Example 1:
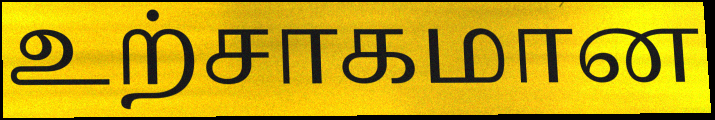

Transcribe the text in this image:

உற்சாகமான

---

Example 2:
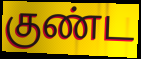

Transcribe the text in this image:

குண்ட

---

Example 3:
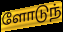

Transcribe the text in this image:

ளோடுந்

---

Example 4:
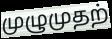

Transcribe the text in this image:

முழுமுதற்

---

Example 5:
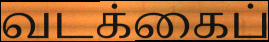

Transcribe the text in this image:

வடக்கைப்